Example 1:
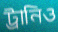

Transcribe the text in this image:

ট্রানিও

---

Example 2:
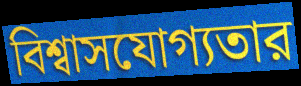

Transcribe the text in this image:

বিশ্বাসযোগ্যতার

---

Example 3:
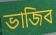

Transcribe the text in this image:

ভাজিব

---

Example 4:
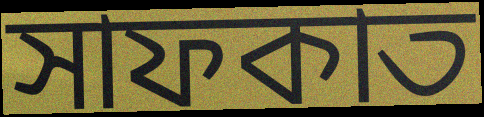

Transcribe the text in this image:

সাফকাত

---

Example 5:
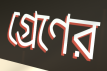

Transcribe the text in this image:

গ্রেণের